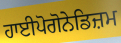
ਹਾਈਪੋਗੋਨੇਡਿਜ਼ਮ